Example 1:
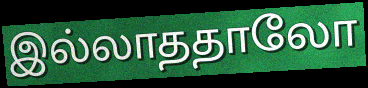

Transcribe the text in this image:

இல்லாததாலோ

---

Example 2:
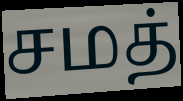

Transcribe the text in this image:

சமத்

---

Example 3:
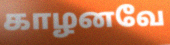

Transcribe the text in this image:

காழனவே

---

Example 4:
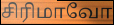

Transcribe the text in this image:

சிரிமாவோ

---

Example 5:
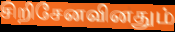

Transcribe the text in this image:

சிறிசேனவினதும்